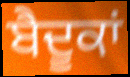
ਬੈਦੂਕਾਂ